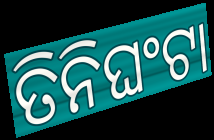
ତିନିଘଂଟା